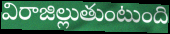
విరాజిల్లుతుంటుంది